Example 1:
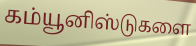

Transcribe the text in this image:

கம்யூனிஸ்டுகளை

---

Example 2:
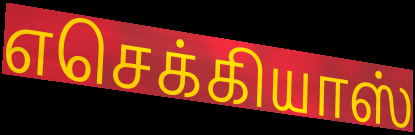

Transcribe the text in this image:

எசெக்கியாஸ்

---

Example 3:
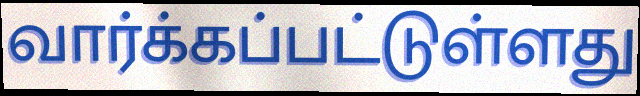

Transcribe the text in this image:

வார்க்கப்பட்டுள்ளது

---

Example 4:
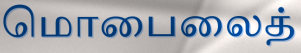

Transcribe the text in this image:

மொபைலைத்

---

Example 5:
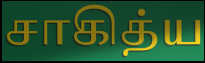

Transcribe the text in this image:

சாகித்ய